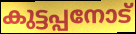
കുട്ടപ്പനോട്